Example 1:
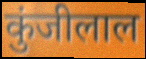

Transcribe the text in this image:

कुंजीलाल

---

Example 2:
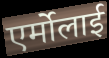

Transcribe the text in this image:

एर्मोलाई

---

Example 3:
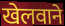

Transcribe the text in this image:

खेलवाने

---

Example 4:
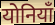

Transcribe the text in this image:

योनियाँ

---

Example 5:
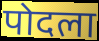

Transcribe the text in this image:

पोदला